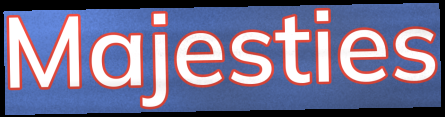
Majesties